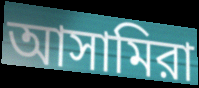
আসামিরা